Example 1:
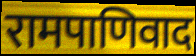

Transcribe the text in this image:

रामपाणिवाद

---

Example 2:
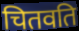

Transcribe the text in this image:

चितवति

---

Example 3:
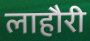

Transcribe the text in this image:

लाहौरी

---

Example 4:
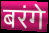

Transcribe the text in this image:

बरंगे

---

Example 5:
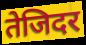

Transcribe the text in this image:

तेजिदर